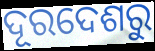
ଦୂରଦେଶରୁ